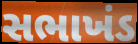
સભાખંડ